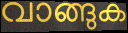
വാങ്ങുക